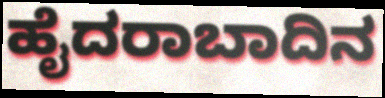
ಹೈದರಾಬಾದಿನ